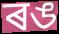
ৰঙ